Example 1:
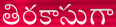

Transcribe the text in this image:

తిరకాసుగా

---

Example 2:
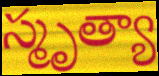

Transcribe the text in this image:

స్మృత్యా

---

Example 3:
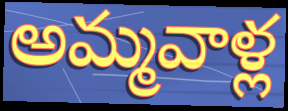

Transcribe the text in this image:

అమ్మవాళ్ల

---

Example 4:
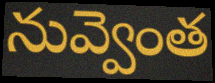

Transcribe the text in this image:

నువ్వెంత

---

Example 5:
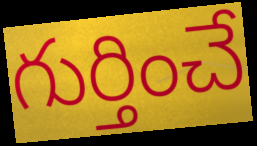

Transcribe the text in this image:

గుర్తించే